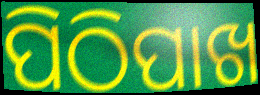
ପିଠିପାଖ